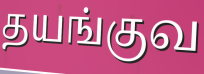
தயங்குவ